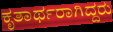
ಕೃತಾರ್ಥರಾಗಿದ್ದರು